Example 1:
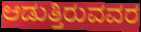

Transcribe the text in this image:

ಆಡುತ್ತಿರುವವರ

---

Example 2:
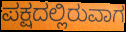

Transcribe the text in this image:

ಪಕ್ಷದಲ್ಲಿರುವಾಗ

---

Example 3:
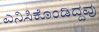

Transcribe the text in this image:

ಎನಿಸಿಕೊಂಡಿದ್ದವು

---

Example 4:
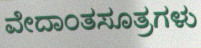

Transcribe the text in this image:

ವೇದಾಂತಸೂತ್ರಗಳು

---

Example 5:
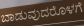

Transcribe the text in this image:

ಬಾಡುವುದರೊಳಗೆ